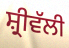
ਸ਼੍ਰੀਵੱਲੀ